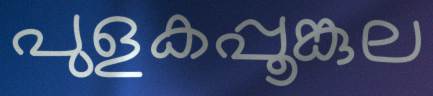
പുളകപ്പൂങ്കുല